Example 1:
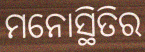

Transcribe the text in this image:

ମନୋସ୍ଥିତିର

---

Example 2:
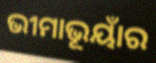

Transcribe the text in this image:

ଭୀମାଭୂୟାଁର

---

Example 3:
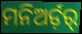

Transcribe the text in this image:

ମନିଅର୍ଡ଼ର୍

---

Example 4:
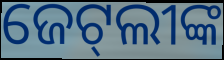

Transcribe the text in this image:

ଜେଟ୍‌ଲୀଙ୍କ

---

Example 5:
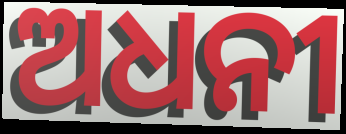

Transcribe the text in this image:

ଅଧନୀ